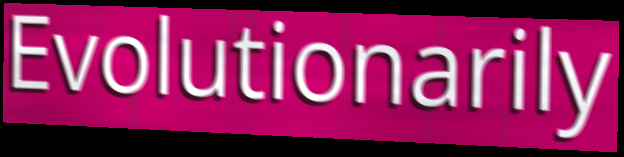
Evolutionarily